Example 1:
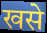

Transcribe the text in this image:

खसे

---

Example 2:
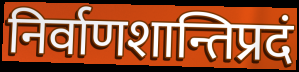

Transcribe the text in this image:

निर्वाणशान्तिप्रदं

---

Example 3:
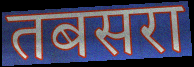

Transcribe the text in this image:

तबसरा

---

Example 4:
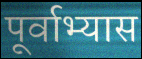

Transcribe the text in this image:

पूर्वाभ्यास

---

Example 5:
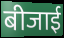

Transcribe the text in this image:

बीजाई